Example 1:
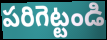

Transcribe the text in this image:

పరిగెట్టండి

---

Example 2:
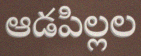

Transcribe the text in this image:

ఆడపిల్లల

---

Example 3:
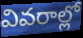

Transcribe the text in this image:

వివరాల్లో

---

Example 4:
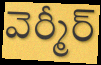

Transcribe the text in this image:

వెర్మీర్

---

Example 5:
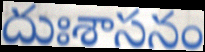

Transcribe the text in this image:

దుఃశాసనం